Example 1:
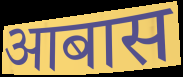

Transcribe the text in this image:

आबास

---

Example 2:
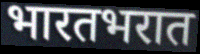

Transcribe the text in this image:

भारतभरात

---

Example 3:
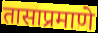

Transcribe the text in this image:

तासाप्रमाणे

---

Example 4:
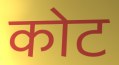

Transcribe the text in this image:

कोट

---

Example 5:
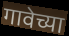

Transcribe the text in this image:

गावेच्या